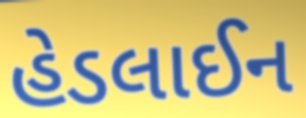
હેડલાઈન